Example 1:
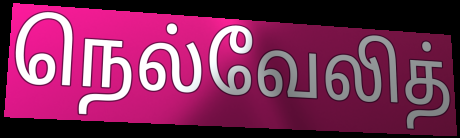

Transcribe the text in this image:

நெல்வேலித்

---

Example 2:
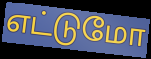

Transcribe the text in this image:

எட்டுமோ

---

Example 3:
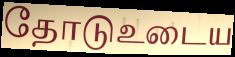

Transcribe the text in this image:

தோடுஉடைய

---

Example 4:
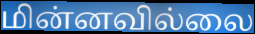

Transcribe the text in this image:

மின்னவில்லை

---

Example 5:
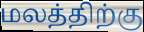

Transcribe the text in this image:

மலத்திற்கு